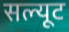
सल्यूट